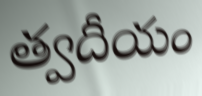
త్వదీయం